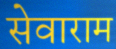
सेवाराम